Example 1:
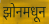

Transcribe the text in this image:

झोनमधून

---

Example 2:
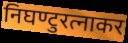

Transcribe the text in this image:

निघण्टुरत्नाकर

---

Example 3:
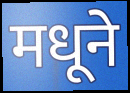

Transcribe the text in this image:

मधूने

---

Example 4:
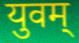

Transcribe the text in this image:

युवम्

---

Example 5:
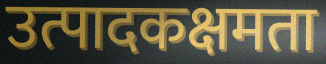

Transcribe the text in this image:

उत्पादकक्षमता